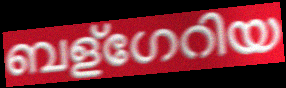
ബള്ഗേറിയ